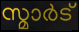
സ്മാർട്